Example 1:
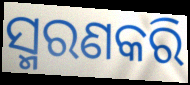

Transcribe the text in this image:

ସ୍ମରଣକରି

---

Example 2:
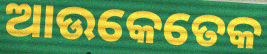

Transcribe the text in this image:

ଆଉକେତେକ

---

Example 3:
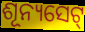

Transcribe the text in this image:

ଶୂନ୍ୟସେଟ୍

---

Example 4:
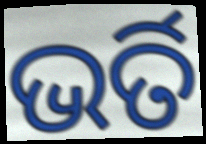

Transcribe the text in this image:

ଭର୍ତି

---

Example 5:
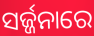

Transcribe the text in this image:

ସର୍ଜ୍ଜନାରେ